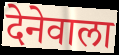
देनेवाला